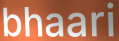
bhaari